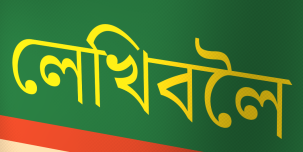
লেখিবলৈ